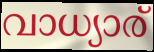
വാധ്യാര്